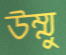
উম্মু